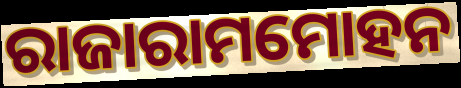
ରାଜାରାମମୋହନ